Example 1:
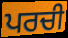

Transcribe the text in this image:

ਪਰਚੀ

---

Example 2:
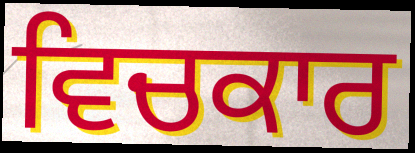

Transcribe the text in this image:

ਵਿਚਕਾਰ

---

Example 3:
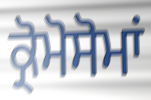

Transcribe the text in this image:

ਕ੍ਰੋਮੋਸੋਮਾਂ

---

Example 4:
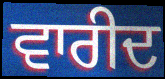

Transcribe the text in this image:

ਵਾਰੀਦ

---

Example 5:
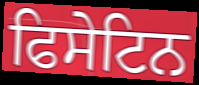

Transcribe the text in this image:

ਫਿਸੇਟਿਨ